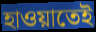
হাওয়াতেই